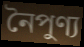
নৈপুণ্য